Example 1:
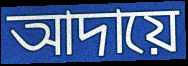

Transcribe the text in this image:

আদায়ে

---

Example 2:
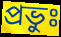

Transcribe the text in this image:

প্রভুঃ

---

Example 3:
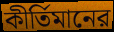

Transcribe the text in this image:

কীর্তিমানের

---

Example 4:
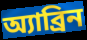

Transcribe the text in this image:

অ্যাব্রিন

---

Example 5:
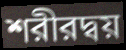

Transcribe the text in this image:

শরীরদ্বয়